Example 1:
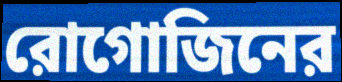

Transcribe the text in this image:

রোগোজিনের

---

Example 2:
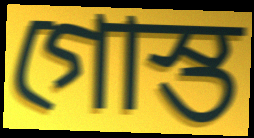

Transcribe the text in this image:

গোস্ত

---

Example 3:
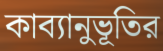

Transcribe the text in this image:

কাব্যানুভূতির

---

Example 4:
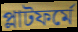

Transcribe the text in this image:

প্লাটফর্মে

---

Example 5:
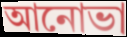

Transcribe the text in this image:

আনোভা